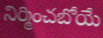
నిర్మించబోయే